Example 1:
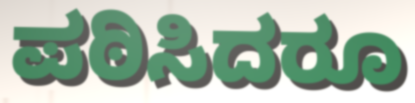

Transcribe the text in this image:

ಪಠಿಸಿದರೂ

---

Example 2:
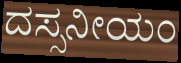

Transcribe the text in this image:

ದಸ್ಸನೀಯಂ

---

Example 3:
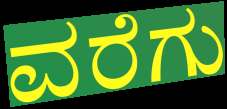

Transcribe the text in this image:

ವರೆಗು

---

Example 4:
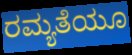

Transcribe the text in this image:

ರಮ್ಯತೆಯೂ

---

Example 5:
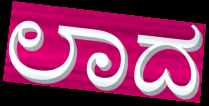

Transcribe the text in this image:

ಲಾದ